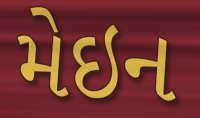
મેઇન